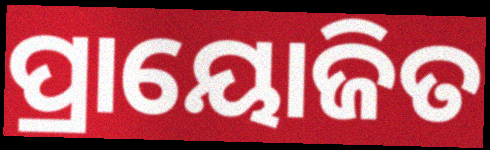
ପ୍ରାୟୋଜିତ